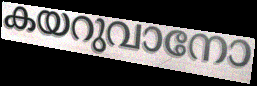
കയറുവാനോ